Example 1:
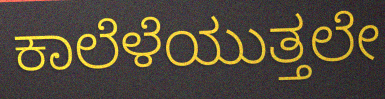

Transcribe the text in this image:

ಕಾಲೆಳೆಯುತ್ತಲೇ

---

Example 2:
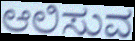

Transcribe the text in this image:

ಆಲಿಸುವ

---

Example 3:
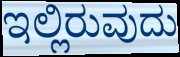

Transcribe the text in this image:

ಇಲ್ಲಿರುವುದು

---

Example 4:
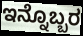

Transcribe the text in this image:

ಇನ್ನೊಬ್ಬರ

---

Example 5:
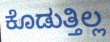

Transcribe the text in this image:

ಕೊಡುತ್ತಿಲ್ಲ